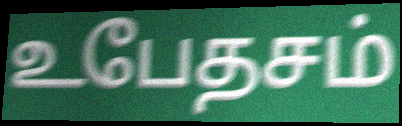
உபேதசம்